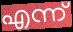
എന്ന്